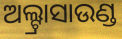
ଅଲ୍ଟ୍ରାସାଉଣ୍ଡ